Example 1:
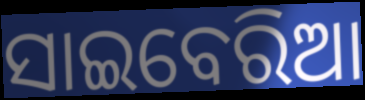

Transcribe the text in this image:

ସାଇବେରିଆ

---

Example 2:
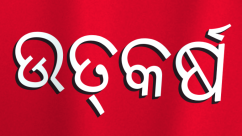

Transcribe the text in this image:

ଉତ୍‌କର୍ଷ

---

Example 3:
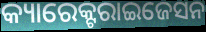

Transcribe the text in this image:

କ୍ୟାରେକ୍ଟରାଇଜେସନ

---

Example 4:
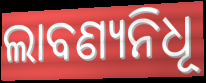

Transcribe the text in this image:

ଲାବଣ୍ୟନିଧୂ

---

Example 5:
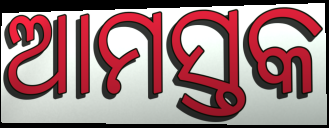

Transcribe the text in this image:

ଆମସ୍ତକ